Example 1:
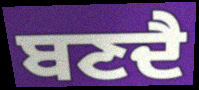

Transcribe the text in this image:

ਬਣਦੈ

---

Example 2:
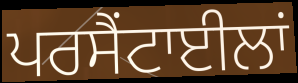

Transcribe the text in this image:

ਪਰਸੈਂਟਾਈਲਾਂ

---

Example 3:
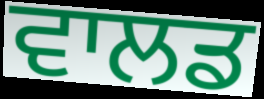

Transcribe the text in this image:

ਵਾਲਡ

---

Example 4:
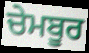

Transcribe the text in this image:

ਚੇਮਬੂਰ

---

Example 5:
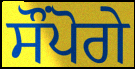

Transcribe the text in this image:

ਸੌਂਪੋਗੇ